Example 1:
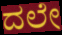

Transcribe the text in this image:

ದಲೇ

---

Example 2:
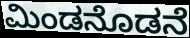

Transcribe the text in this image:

ಮಿಂಡನೊಡನೆ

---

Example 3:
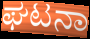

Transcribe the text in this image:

ಘಟನಾ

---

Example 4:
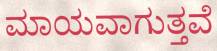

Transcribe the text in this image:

ಮಾಯವಾಗುತ್ತವೆ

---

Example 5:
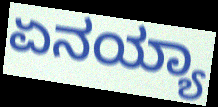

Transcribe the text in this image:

ಏನಯ್ಯಾ